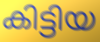
കിട്ടിയ